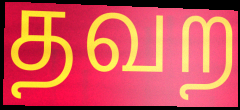
தவற